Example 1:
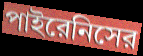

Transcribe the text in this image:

পাইরেনিসের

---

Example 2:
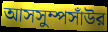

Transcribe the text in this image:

আসসুম্পসাঁউর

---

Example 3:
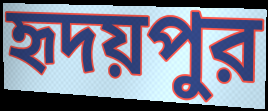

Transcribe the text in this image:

হৃদয়পুর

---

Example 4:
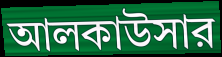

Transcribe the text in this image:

আলকাউসার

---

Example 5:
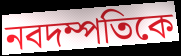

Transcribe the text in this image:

নবদম্পতিকে